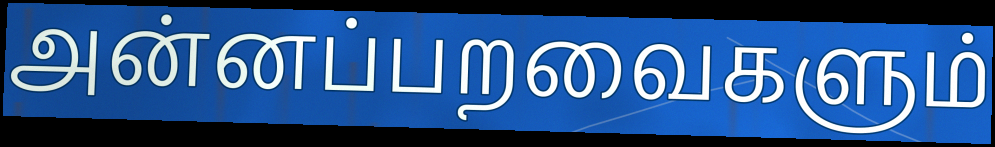
அன்னப்பறவைகளும்